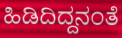
ಹಿಡಿದಿದ್ದನಂತೆ